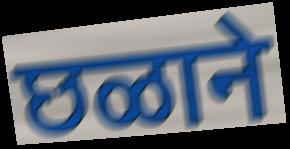
छळाने